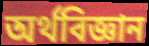
অৰ্থবিজ্ঞান